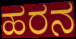
ಹರನ